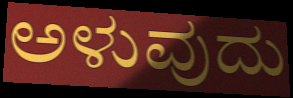
ಅಳುವುದು